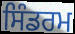
ਸਿੰਡਰਮ